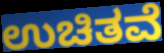
ಉಚಿತವೆ